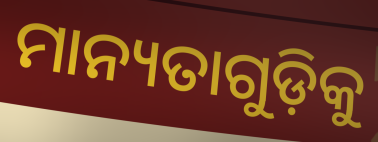
ମାନ୍ୟତାଗୁଡ଼ିକୁ